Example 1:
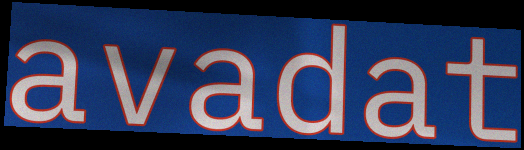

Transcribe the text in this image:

avadat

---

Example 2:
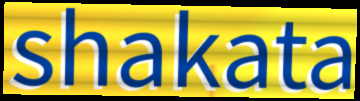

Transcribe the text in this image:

shakata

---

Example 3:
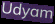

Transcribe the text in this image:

Udyam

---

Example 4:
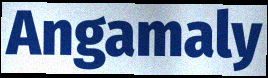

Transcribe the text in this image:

Angamaly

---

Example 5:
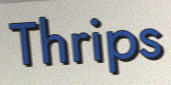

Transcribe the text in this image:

Thrips